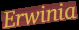
Erwinia